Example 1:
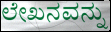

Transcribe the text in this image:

ಲೇಖನವನ್ನು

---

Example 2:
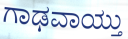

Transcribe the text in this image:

ಗಾಢವಾಯ್ತು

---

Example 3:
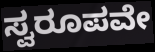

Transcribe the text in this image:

ಸ್ವರೂಪವೇ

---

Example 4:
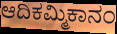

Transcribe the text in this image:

ಆದಿಕಮ್ಮಿಕಾನಂ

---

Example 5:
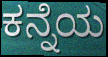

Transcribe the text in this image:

ಕನ್ನೆಯ